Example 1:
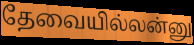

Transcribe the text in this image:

தேவையில்லன்னு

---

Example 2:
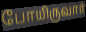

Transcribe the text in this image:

போயிருவார்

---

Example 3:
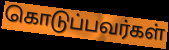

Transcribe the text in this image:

கொடுப்பவர்கள்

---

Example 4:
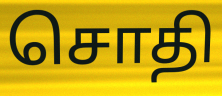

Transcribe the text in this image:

சொதி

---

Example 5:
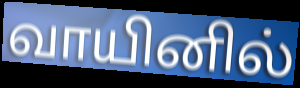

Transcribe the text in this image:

வாயினில்